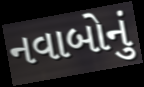
નવાબોનું